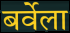
बर्वेला